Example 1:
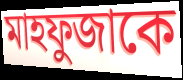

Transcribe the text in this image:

মাহফুজাকে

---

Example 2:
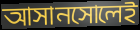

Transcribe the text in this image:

আসানসোলেই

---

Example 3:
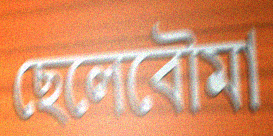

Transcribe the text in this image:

ছেলেবৌমা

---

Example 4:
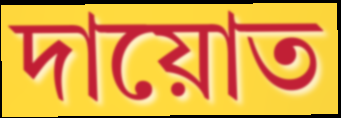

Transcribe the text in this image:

দায়োত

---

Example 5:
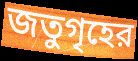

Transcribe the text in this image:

জতুগৃহের